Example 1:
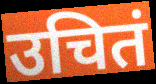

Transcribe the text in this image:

उचितं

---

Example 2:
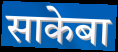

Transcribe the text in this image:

साकेबा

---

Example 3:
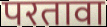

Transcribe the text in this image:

परतावा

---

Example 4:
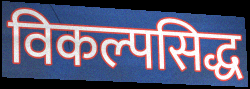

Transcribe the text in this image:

विकल्पसिद्ध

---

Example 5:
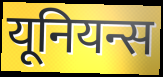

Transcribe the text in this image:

यूनियन्स